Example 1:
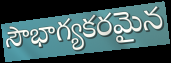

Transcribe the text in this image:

సౌభాగ్యకరమైన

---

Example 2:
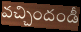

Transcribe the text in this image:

వచ్చిందండీ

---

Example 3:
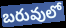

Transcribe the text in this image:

బరువులో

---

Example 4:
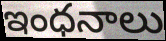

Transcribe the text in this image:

ఇంధనాలు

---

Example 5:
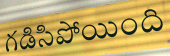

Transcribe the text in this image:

గడిసిపోయింది